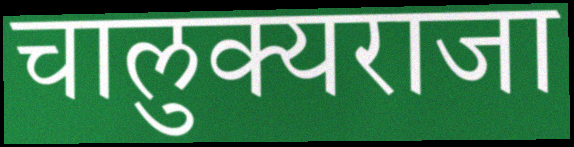
चालुक्यराजा